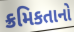
ક્રમિકતાનો